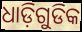
ଧାଡ଼ିଗୁଡିକ